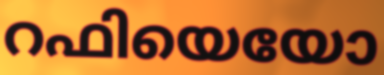
റഫിയെയോ